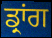
ਡ੍ਰਾਂਗ